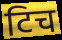
टिच